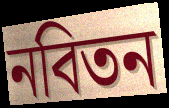
নবিতন